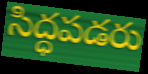
సిద్ధపడరు